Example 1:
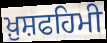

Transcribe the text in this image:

ਖ਼ੁਸ਼ਫਹਿਮੀ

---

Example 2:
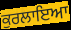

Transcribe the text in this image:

ਕੁਰਲਾਇਆ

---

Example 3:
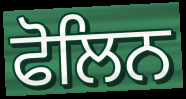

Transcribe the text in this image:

ਫੋਲਿਨ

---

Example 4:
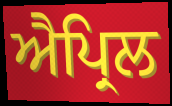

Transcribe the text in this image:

ਐਪ੍ਰਿਲ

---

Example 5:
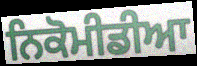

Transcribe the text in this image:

ਨਿਕੋਮੀਡੀਆ